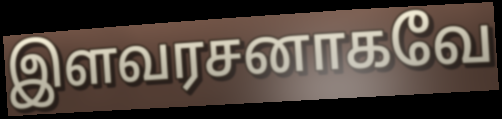
இளவரசனாகவே